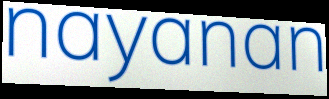
nayanan